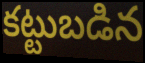
కట్టుబడిన